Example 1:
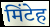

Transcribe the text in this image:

मिंटेह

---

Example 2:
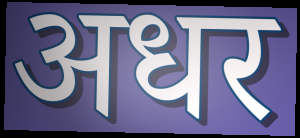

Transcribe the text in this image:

अधर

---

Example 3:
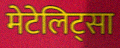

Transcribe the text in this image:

मेटेलिट्सा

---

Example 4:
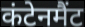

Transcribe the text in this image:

कंटेनमैंट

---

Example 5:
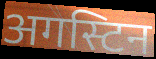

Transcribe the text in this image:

अगस्टिन